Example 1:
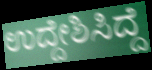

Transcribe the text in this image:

ಉದ್ದೇಶಿಸಿದ್ದೆ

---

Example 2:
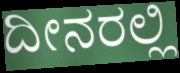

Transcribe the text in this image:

ದೀನರಲ್ಲಿ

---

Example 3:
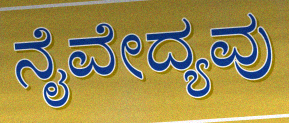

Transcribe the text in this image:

ನೈವೇದ್ಯವು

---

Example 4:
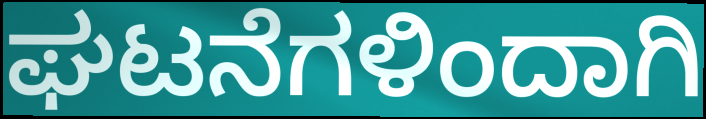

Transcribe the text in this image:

ಘಟನೆಗಳಿಂದಾಗಿ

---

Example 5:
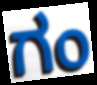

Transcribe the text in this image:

ಗಂ